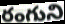
రంగుని